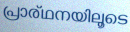
പ്രാര്ഥനയിലൂടെ